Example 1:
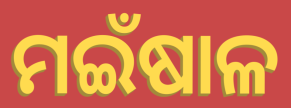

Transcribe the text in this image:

ମଇଁଷାଳ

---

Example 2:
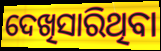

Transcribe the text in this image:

ଦେଖିସାରିଥିବା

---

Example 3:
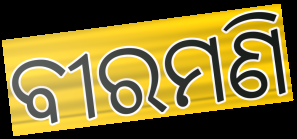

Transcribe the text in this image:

ବୀରମଣି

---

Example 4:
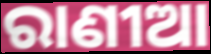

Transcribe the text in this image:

ରାଣୀଆ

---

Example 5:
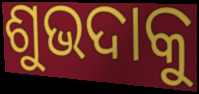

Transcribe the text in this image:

ଶୁଭଦାକୁ